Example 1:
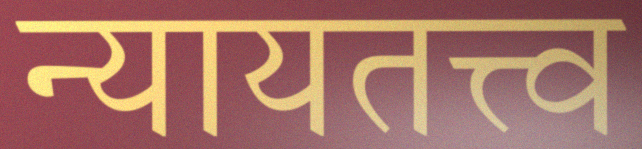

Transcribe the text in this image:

न्यायतत्त्व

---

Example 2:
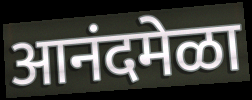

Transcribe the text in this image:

आनंदमेळा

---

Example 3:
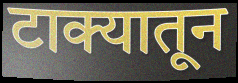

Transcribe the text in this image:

टाक्यातून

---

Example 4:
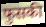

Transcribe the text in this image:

फुसकी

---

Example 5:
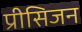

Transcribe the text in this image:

प्रीसिजन